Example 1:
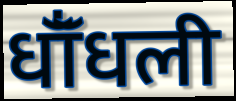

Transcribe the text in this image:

धॉँधली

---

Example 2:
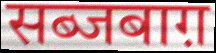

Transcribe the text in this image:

सब्जबाग़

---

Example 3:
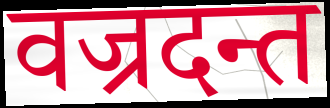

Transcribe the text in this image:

वज्रदन्त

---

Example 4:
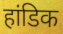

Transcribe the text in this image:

हांडिक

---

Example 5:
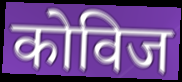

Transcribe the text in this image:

कोविज